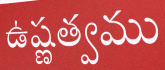
ఉష్ణత్వము